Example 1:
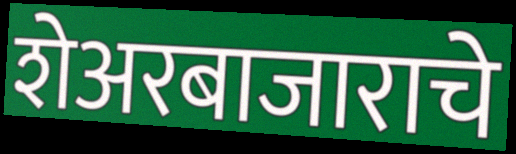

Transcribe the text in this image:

शेअरबाजाराचे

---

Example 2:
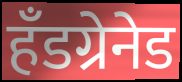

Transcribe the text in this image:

हँडग्रेनेड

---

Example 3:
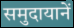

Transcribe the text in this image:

समुदायानें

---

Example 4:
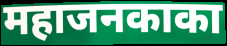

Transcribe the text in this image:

महाजनकाका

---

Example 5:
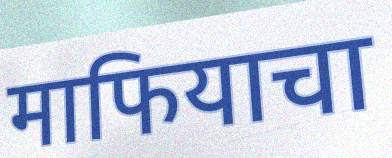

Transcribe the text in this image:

माफियाचा